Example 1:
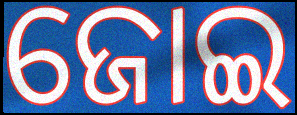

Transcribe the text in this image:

ଜୋଇ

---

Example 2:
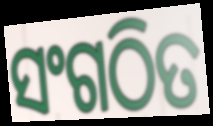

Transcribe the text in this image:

ସଂଗଠିତ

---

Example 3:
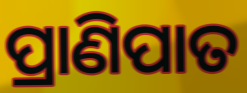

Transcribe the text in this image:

ପ୍ରାଣିପାତ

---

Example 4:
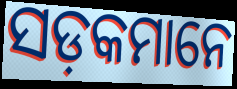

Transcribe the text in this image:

ସଡ଼କମାନେ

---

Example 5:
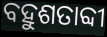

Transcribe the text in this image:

ବହୁଶତାବ୍ଦୀ